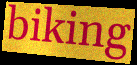
biking